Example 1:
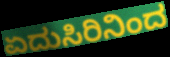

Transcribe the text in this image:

ಏದುಸಿರಿನಿಂದ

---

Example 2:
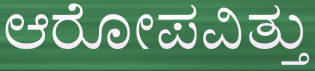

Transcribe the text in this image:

ಆರೋಪವಿತ್ತು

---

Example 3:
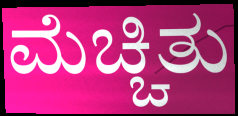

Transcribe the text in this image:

ಮೆಚ್ಚಿತು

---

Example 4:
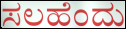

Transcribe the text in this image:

ಸಲಹೆಂದು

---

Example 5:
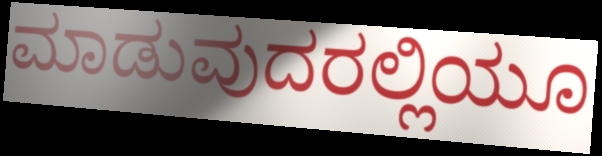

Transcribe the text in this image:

ಮಾಡುವುದರಲ್ಲಿಯೂ